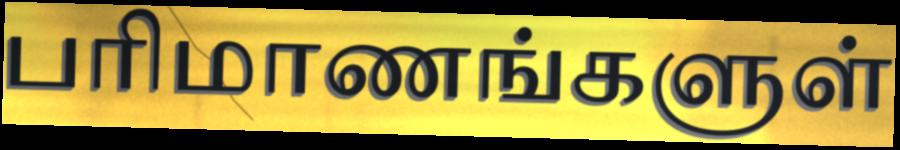
பரிமாணங்களுள்